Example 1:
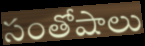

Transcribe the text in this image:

సంతోషాలు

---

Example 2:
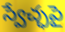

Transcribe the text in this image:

స్వేచ్ఛపై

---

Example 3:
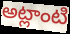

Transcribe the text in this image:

అట్లాంటి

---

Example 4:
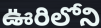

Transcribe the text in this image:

ఊరిలోని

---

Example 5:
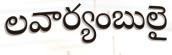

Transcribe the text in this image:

లవార్యంబులై